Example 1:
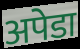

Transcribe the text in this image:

अपेडा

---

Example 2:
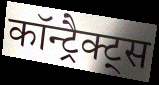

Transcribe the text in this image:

कॉन्ट्रैक्ट्स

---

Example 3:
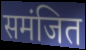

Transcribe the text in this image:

समंजित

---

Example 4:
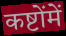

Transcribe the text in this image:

कष्टोंमें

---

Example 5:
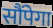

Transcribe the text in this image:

सौंपेगा